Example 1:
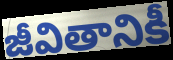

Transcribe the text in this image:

జీవితానికీ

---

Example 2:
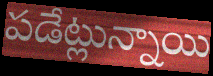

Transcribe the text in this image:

పడేట్లున్నాయి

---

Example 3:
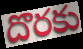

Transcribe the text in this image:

దొరకు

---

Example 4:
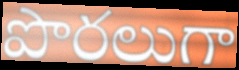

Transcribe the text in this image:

పొరలుగా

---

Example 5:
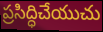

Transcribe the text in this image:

ప్రసిద్ధిచేయుచు